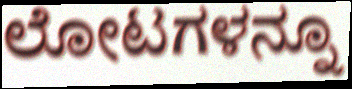
ಲೋಟಗಳನ್ನೂ